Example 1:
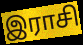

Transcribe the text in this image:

இராசி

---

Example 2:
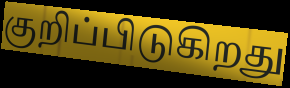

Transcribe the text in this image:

குறிப்பிடுகிறது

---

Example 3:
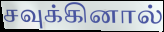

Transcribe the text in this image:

சவுக்கினால்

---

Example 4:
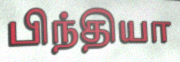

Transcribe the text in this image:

பிந்தியா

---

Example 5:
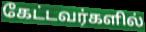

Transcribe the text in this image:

கேட்டவர்களில்